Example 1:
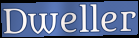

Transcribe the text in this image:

Dweller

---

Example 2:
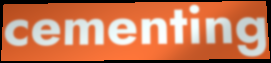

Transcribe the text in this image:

cementing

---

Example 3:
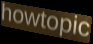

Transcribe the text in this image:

howtopic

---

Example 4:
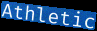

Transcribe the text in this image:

Athletic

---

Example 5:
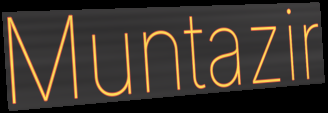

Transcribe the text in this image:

Muntazir